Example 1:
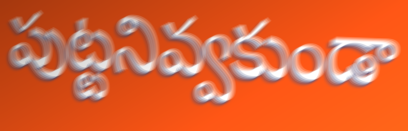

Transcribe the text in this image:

పుట్టనివ్వకుండా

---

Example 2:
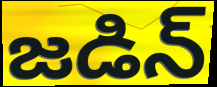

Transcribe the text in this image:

జడిన్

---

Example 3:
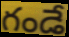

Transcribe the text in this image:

గండే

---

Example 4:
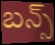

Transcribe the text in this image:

బన్స్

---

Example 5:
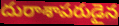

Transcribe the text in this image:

దురాశాపరుడైన